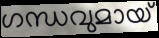
ഗന്ധവുമായ്